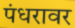
पंधरावर